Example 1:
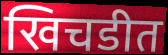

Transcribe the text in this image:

खिचडीत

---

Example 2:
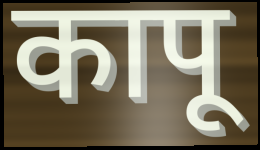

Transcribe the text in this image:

कापू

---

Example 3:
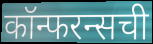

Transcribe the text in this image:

कॉन्फरन्सची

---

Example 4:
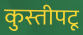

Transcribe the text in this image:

कुस्तीपटू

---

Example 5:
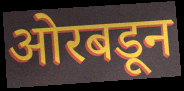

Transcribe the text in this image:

ओरबडून